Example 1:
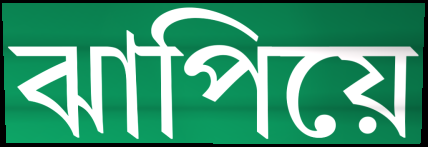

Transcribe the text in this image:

ঝাপিয়ে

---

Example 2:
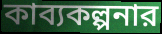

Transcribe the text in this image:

কাব্যকল্পনার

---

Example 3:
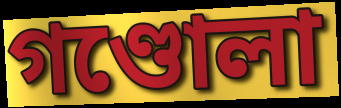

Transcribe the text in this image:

গণ্ডোলা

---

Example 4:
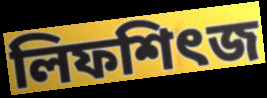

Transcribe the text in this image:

লিফশিৎজ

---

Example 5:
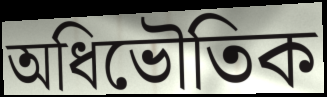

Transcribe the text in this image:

অধিভৌতিক